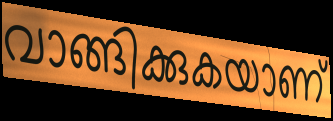
വാങ്ങിക്കുകയാണ്